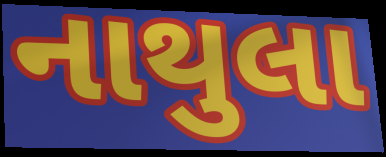
નાથુલા